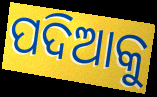
ପଦିଆକୁ